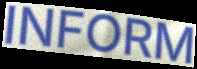
INFORM